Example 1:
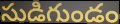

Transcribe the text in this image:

సుడిగుండం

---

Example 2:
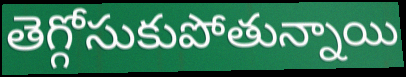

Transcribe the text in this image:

తెగ్గోసుకుపోతున్నాయి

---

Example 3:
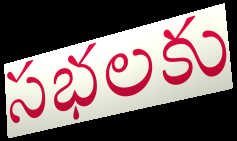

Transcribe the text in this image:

సభలకు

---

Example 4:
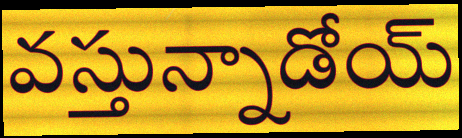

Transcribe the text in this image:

వస్తున్నాడోయ్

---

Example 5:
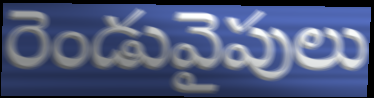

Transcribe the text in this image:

రెండువైపులు